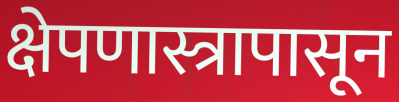
क्षेपणास्त्रापासून